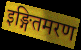
इङ्गितमरण